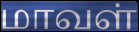
மாவள்